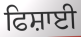
ਫਿਸ਼ਾਈ